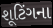
શૂટિંગના